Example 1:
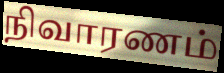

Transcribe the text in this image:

நிவாரணம்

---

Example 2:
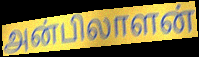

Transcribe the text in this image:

அன்பிலாளன்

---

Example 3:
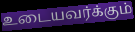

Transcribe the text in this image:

உடையவர்க்கும்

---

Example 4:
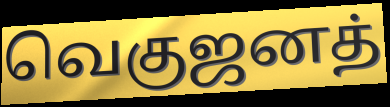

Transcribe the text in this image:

வெகுஜனத்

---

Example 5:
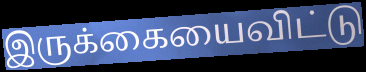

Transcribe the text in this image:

இருக்கையைவிட்டு